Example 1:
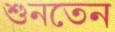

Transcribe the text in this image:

শুনতেন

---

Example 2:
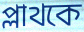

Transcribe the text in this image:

প্লাথকে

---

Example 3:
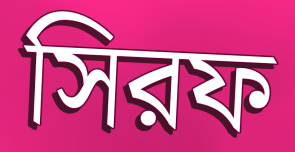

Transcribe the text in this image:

সিরফ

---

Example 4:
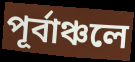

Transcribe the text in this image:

পূর্বাঞ্চলে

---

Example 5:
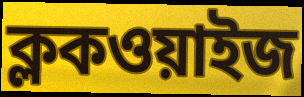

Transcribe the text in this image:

ক্লকওয়াইজ